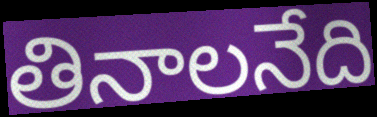
తినాలనేది